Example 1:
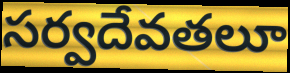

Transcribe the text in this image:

సర్వదేవతలూ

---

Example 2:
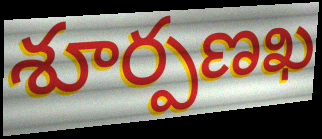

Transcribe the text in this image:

శూర్పణఖ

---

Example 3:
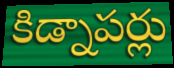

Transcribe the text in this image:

కిడ్నాపర్లు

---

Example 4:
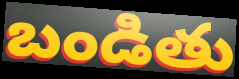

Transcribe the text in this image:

బండితు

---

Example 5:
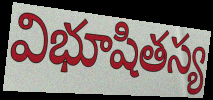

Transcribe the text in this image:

విభూషితస్య